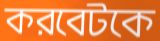
করবেটকে